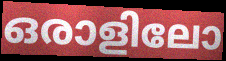
ഒരാളിലോ